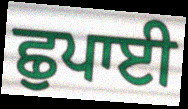
ਛੁਪਾਈ